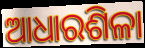
ଆଧାରଶିଳା